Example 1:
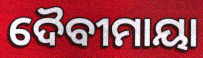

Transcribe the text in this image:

ଦୈବୀମାୟା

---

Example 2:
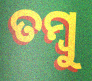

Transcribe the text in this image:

ତମ୍ବୁ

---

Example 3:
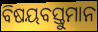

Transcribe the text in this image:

ବିଷୟବସ୍ତୁମାନ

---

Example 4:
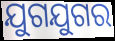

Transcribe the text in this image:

ଯୁଗଯୁଗର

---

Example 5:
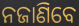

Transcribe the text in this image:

ନଜାଣିବେ